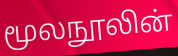
மூலநூலின்